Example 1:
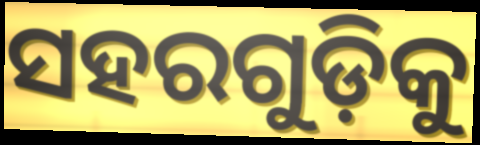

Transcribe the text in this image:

ସହରଗୁଡ଼ିକୁ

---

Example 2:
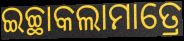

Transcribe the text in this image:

ଇଚ୍ଛାକଲାମାତ୍ରେ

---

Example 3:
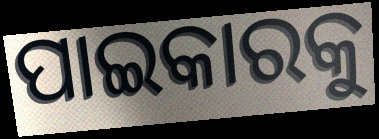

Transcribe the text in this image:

ପାଇକାରକୁ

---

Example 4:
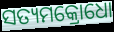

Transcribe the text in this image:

ସତ୍ୟମକ୍ରୋଧୋ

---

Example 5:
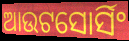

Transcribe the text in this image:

ଆଉଟସୋର୍ସିଂ